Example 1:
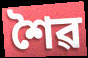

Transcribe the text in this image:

শৈৱ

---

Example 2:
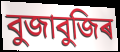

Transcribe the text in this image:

বুজাবুজিৰ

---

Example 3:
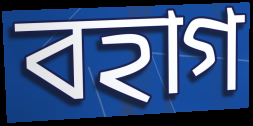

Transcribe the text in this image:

বহাগ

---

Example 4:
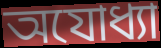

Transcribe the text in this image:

অযোধ্যা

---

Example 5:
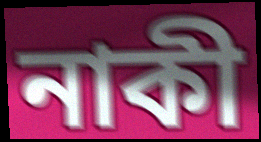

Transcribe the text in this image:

নাকী